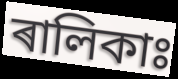
ৰালিকাঃ